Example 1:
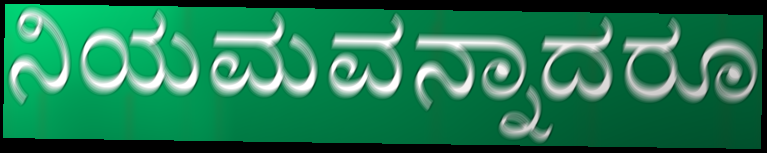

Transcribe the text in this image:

ನಿಯಮವನ್ನಾದರೂ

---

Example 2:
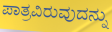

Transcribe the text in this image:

ಪಾತ್ರವಿರುವುದನ್ನು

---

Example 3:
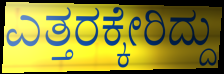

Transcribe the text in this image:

ಎತ್ತರಕ್ಕೇರಿದ್ದು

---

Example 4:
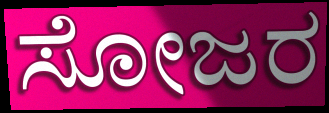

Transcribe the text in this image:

ಸೋಜರ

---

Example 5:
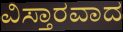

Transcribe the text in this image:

ವಿಸ್ತಾರವಾದ